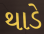
થાડે